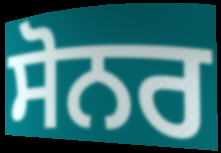
ਸੋਨਰ